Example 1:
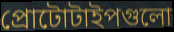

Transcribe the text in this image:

প্রোটোটাইপগুলো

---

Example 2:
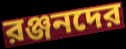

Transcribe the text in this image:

রঞ্জনদের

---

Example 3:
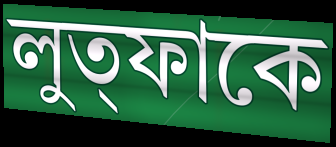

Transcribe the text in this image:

লুত্ফাকে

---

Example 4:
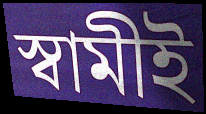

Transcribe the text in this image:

স্বামীই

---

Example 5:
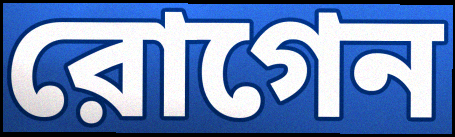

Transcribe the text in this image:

রোগেন